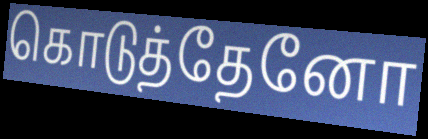
கொடுத்தேனோ